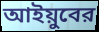
আইয়ুবের